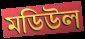
মডিউল